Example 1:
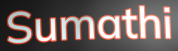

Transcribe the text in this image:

Sumathi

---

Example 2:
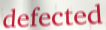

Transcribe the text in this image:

defected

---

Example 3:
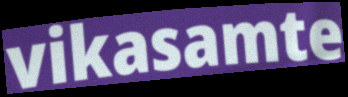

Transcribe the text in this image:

vikasamte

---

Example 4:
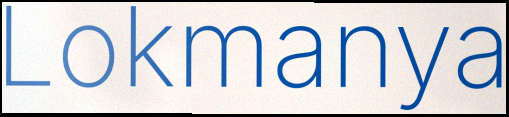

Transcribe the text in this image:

Lokmanya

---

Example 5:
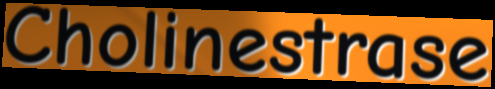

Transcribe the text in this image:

Cholinestrase